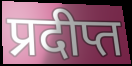
प्रदीप्त